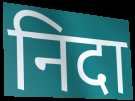
निदा